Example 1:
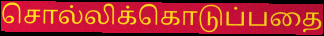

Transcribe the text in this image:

சொல்லிக்கொடுப்பதை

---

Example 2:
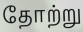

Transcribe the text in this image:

தோற்று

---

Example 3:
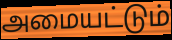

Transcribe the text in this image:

அமையட்டும்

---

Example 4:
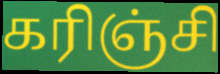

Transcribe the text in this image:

கரிஞ்சி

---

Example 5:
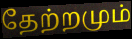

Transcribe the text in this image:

தேற்றமும்